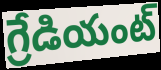
గ్రేడియంట్